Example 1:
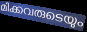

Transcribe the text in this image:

മിക്കവരുടെയും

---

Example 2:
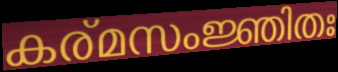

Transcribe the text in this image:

കര്മസംജ്ഞിതഃ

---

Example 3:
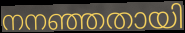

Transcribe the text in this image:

നനഞ്ഞതായി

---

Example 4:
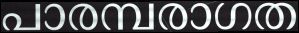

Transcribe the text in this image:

പാരമ്പരാഗത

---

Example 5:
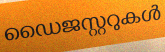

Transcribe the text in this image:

ഡൈജസ്റ്ററുകൾ